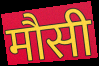
मौसी